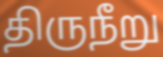
திருநீறு